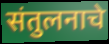
संतुलनाचे